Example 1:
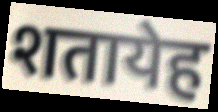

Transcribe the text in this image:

शतायेह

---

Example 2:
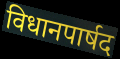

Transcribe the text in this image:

विधानपार्षद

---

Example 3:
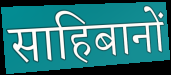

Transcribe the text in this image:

साहिबानों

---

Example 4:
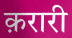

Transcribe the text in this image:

क़रारी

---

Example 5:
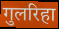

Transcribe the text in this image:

गुलरिहा